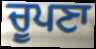
ਚੂਪਣਾ